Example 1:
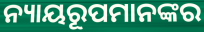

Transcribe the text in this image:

ନ୍ୟାୟରୂପମାନଙ୍କର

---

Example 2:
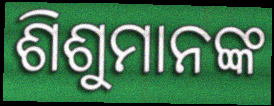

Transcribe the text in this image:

ଶିଶୁମାନଙ୍କ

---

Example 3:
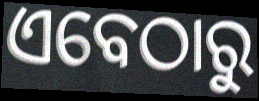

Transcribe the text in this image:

ଏବେଠାରୁ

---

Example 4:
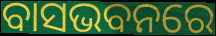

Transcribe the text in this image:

ବାସଭବନରେ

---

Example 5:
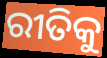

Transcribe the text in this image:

ରୀତିକୁ